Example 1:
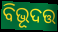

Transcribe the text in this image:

ବିଭୂଦତ୍ତ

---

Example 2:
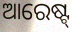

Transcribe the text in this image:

ଆରେଷ୍ଟ୍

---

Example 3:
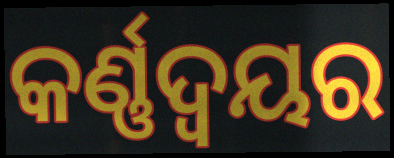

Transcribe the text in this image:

କର୍ଣ୍ଣଦ୍ୱୟର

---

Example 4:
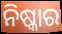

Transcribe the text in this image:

ନିଷ୍କାର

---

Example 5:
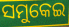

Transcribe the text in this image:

ସମୁକେଇ